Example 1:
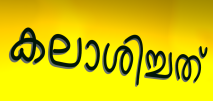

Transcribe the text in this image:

കലാശിച്ചത്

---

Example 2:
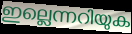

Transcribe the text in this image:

ഇല്ലെന്നറിയുക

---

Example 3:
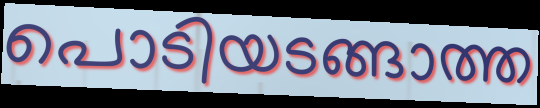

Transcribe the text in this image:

പൊടിയടങ്ങാത്ത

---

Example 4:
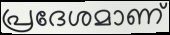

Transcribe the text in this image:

പ്രദേശമാണ്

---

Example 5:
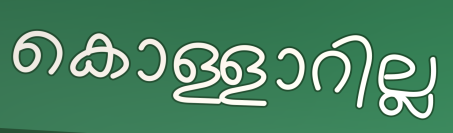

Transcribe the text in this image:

കൊള്ളാറില്ല